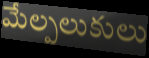
మేల్పలుకులు